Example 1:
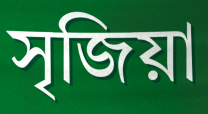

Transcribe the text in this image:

সৃজিয়া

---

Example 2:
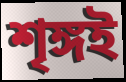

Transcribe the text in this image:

শৃঙ্গই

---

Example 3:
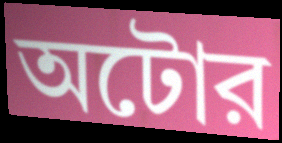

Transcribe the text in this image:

অটোর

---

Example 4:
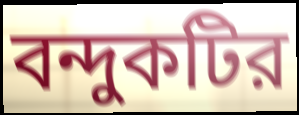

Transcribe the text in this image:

বন্দুকটির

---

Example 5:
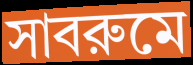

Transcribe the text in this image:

সাবরুমে